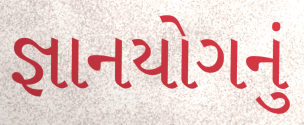
જ્ઞાનયોગનું